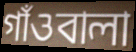
গাঁওবালা